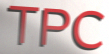
TPC